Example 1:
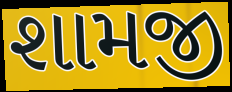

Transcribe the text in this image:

શામજી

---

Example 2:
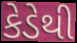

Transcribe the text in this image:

કેડેથી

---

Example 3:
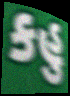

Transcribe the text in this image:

કહુ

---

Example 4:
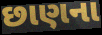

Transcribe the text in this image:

છાણના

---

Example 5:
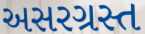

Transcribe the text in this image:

અસરગ્રસ્ત